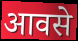
आवसे